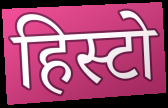
हिस्टो